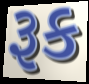
રૂક